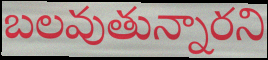
బలవుతున్నారని